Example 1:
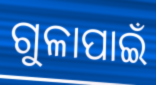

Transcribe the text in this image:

ଗୁଳାପାଇଁ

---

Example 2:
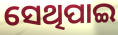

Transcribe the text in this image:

ସେଥିପାଇ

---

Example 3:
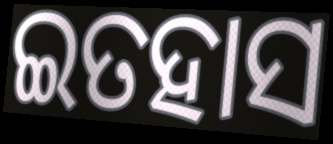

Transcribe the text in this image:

ଇତହାସ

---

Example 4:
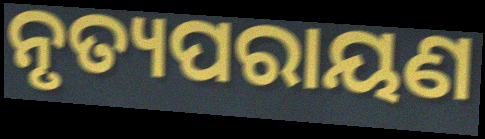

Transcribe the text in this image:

ନୃତ୍ୟପରାୟଣ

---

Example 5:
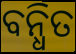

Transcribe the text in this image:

ବନ୍ଧିତ